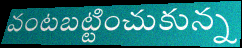
వంటబట్టించుకున్న